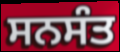
ਸਨਸੰਤ